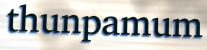
thunpamum